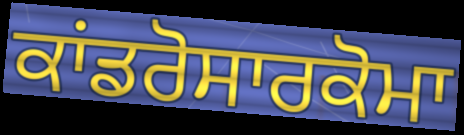
ਕਾਂਡਰੋਸਾਰਕੋਮਾ